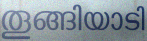
തൂങ്ങിയാടി